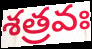
శత్రవః